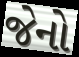
જેનો